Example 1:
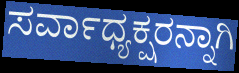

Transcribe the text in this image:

ಸರ್ವಾಧ್ಯಕ್ಷರನ್ನಾಗಿ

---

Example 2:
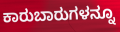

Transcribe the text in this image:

ಕಾರುಬಾರುಗಳನ್ನೂ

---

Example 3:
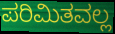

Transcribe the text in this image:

ಪರಿಮಿತವಲ್ಲ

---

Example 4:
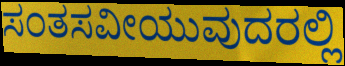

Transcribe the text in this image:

ಸಂತಸವೀಯುವುದರಲ್ಲಿ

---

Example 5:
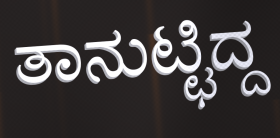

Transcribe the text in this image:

ತಾನುಟ್ಟಿದ್ದ